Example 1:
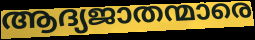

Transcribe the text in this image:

ആദ്യജാതന്മാരെ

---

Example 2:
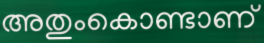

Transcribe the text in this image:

അതുംകൊണ്ടാണ്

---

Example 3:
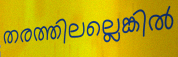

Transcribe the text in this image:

തരത്തിലല്ലെങ്കിൽ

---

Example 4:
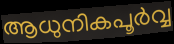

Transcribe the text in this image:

ആധുനികപൂർവ്വ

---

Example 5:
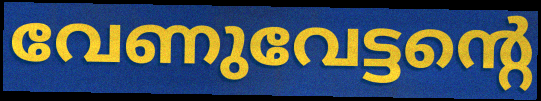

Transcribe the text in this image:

വേണുവേട്ടന്റെ